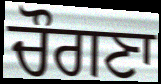
ਚੌਗਣਾ